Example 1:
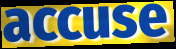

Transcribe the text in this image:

accuse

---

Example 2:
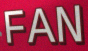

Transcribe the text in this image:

FAN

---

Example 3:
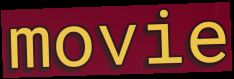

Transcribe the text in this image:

movie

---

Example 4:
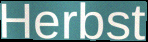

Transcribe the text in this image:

Herbst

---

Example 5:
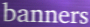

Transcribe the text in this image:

banners